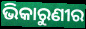
ଭିକାରୁଣୀର